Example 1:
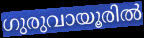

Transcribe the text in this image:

ഗുരുവായൂരിൽ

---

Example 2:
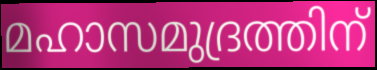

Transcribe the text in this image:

മഹാസമുദ്രത്തിന്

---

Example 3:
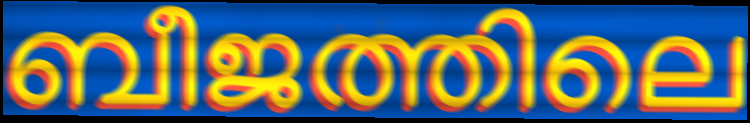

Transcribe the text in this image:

ബീജത്തിലെ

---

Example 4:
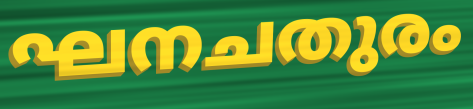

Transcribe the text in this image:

ഘനചതുരം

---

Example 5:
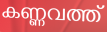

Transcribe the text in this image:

കണ്ണവത്ത്